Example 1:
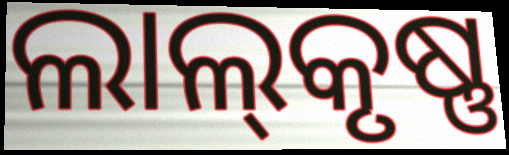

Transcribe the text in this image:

ଲାଲ୍‌କୃଷ୍ଣ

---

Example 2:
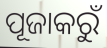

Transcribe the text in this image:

ପୂଜାକରୁଁ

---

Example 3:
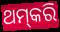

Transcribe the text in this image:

ଥମ୍‌କରି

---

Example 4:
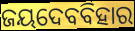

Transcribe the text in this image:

ଜୟଦେବବିହାର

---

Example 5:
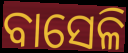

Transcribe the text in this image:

ବାସେଳି